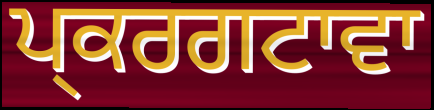
ਪ੍ਕਰਗਟਾਵਾ